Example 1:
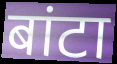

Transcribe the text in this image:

बांटा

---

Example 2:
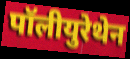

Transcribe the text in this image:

पॉलीयुरेथेन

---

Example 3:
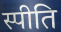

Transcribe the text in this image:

स्पीति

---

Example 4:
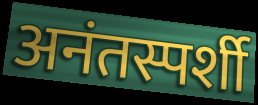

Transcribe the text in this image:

अनंतस्पर्शी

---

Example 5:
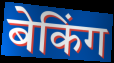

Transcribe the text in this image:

बेकिंग